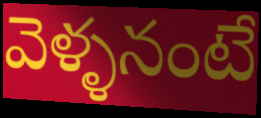
వెళ్ళనంటే